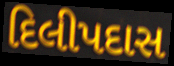
દિલીપદાસ